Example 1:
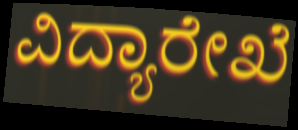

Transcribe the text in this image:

ವಿದ್ಯಾರೇಖೆ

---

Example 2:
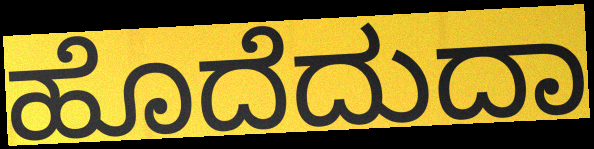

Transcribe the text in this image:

ಹೊದೆದುದಾ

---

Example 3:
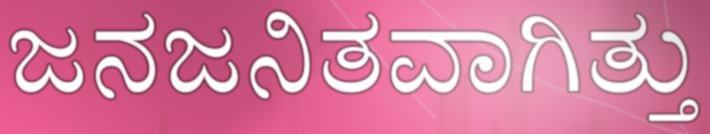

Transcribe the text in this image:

ಜನಜನಿತವಾಗಿತ್ತು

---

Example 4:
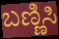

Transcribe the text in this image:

ಬಣ್ಣಿಸಿ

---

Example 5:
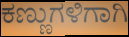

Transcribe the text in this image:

ಕಣ್ಣುಗಳಿಗಾಗಿ